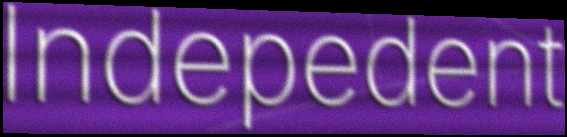
Indepedent